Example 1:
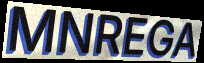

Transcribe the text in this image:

MNREGA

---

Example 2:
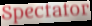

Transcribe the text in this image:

Spectator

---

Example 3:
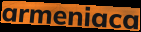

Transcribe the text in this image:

armeniaca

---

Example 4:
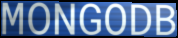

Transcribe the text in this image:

MONGODB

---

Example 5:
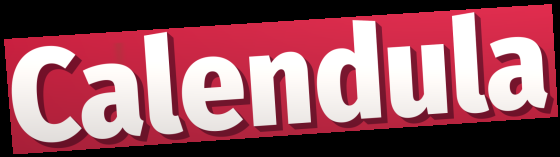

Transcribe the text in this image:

Calendula